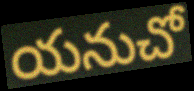
యనుచో